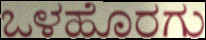
ಒಳಹೊರಗು